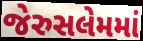
જેરુસલેમમાં